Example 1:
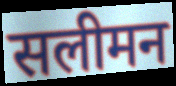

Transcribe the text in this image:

सलीमन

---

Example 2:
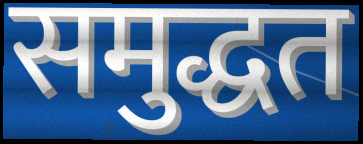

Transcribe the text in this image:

समुद्धत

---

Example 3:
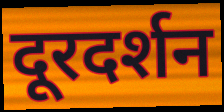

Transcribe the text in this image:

दूरदर्शन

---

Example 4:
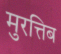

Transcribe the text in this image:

मुरत्तिब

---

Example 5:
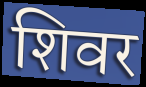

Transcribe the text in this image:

शिवर